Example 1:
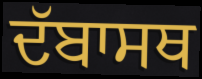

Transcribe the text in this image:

ਦੱਬਾਸਥ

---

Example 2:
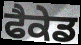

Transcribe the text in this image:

ਫੈਕੇਡ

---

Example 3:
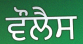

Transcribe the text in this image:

ਵੌਲੈਸ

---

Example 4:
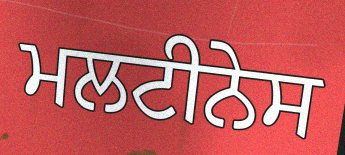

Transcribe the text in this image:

ਮਲਟੀਨੇਸ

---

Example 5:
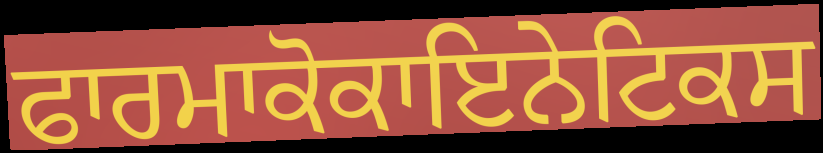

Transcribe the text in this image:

ਫਾਰਮਾਕੋਕਾਇਨੇਟਿਕਸ